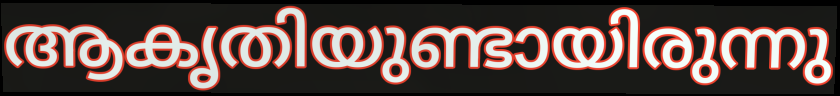
ആകൃതിയുണ്ടായിരുന്നു